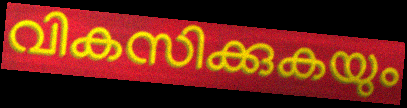
വികസിക്കുകയും